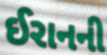
ઈરાનની